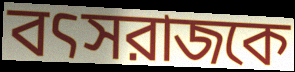
বৎসরাজকে